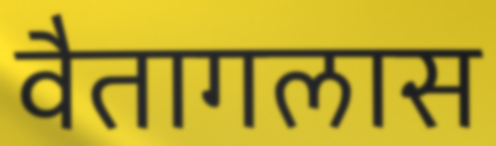
वैतागलास